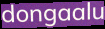
dongaalu